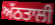
ਅੱਠਤਾਲੀ